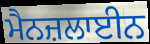
ਮੈਨਜ਼ਲਾਈਨ